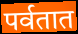
पर्वतात